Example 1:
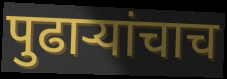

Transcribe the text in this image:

पुढाऱ्यांचाच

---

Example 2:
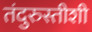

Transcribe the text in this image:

तंदुरुस्तीशी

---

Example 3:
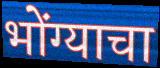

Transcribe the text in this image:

भोंग्याचा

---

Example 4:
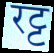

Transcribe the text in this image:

रट्ट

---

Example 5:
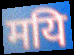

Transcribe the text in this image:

मयि